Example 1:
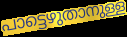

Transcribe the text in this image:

പാട്ടെഴുതാനുള്ള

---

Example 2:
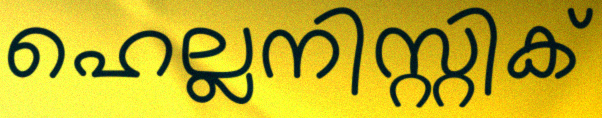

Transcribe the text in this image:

ഹെല്ലനിസ്റ്റിക്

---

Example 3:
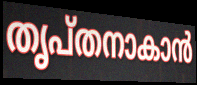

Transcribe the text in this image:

തൃപ്തനാകാൻ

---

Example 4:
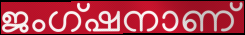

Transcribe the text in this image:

ജംഗ്ഷനാണ്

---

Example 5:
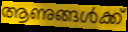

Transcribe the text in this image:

ആണുങ്ങൾക്ക്